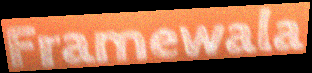
Framewala